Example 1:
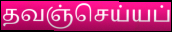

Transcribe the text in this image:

தவஞ்செய்யப்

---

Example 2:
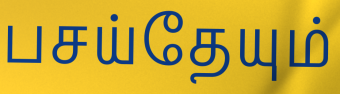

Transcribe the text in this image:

பசய்தேயும்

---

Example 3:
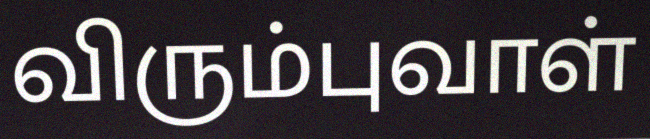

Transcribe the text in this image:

விரும்புவாள்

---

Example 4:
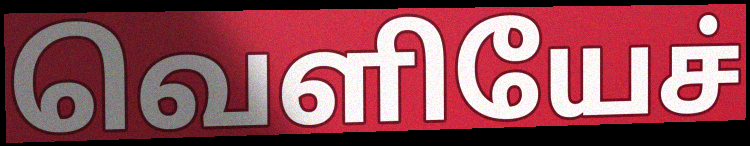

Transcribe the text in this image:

வெளியேச்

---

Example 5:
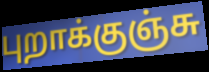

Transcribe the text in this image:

புறாக்குஞ்சு